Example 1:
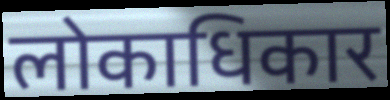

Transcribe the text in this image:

लोकाधिकार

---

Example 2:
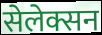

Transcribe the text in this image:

सेलेक्सन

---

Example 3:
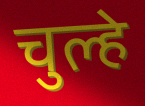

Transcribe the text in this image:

चुल्हे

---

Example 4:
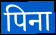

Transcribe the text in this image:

पिना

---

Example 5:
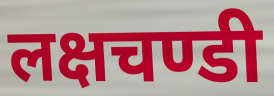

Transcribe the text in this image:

लक्षचण्डी